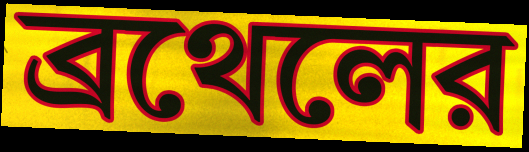
ব্রথেলের